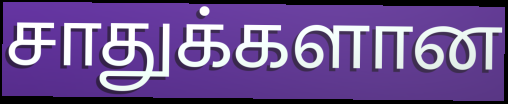
சாதுக்களான